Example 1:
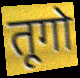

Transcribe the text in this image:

तूगो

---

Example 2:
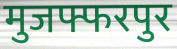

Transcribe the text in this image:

मुजफ्फरपुर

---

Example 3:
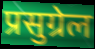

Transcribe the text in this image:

प्रसुग्रेल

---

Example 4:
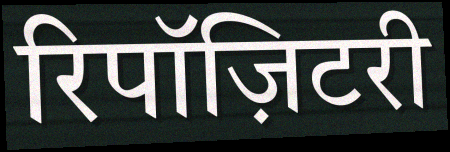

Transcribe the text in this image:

रिपॉज़िटरी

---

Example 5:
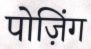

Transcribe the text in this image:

पोज़िंग